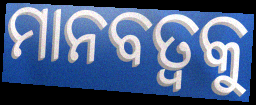
ମାନବତ୍ବକୁ